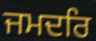
ਜਮਦਰਿ